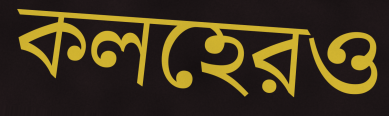
কলহেরও